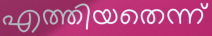
എത്തിയതെന്ന്